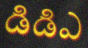
డిడిఎ